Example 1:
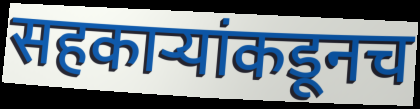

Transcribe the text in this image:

सहकार्‍यांकडूनच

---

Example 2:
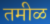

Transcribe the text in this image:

तमीळ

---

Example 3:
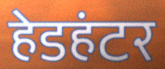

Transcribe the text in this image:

हेडहंटर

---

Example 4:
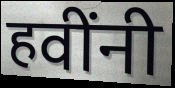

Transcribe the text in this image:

हवींनी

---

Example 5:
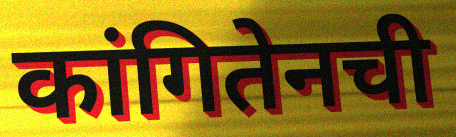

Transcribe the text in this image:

कांगितेनची